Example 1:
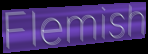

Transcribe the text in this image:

Flemish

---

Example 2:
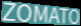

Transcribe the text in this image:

ZOMATO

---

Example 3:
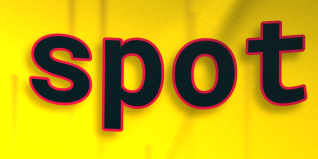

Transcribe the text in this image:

spot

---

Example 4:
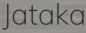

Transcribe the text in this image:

Jataka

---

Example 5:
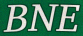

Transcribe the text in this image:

BNE